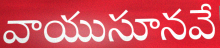
వాయుసూనవే